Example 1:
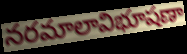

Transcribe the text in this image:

నరమాలావిభూషణా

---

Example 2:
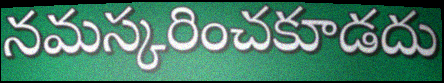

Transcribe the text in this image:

నమస్కరించకూడదు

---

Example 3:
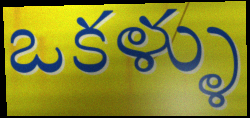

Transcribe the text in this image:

ఒకళ్ళు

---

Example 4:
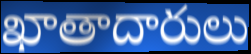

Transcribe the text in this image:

ఖాతాదారులు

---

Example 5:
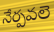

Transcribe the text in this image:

నేర్పవలె